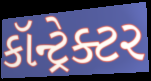
કૉન્ટ્રેક્ટર